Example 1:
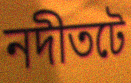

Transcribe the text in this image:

নদীতটে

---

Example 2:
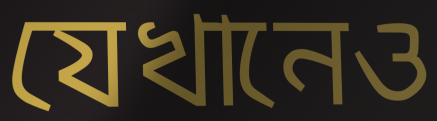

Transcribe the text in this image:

যেখানেও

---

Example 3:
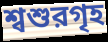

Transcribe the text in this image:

শ্বশুরগৃহ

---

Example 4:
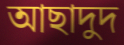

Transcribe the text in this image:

আছাদুদ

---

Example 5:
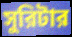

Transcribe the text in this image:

সুরিটার